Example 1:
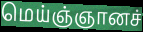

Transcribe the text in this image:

மெய்ஞ்ஞானச்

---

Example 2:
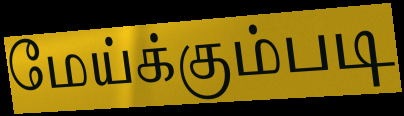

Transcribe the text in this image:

மேய்க்கும்படி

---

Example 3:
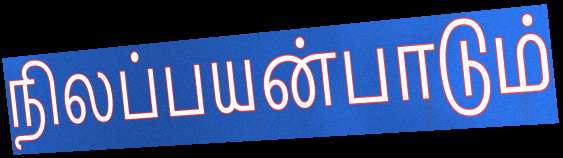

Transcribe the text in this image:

நிலப்பயன்பாடும்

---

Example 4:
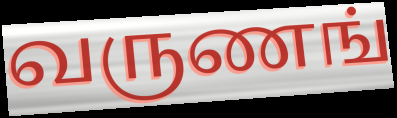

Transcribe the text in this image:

வருணங்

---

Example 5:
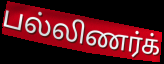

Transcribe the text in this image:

பல்லிணர்க்